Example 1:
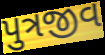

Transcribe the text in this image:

પુત્રજીવ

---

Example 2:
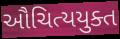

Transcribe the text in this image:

ઔચિત્યયુક્ત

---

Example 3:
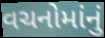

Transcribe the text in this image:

વચનોમાંનું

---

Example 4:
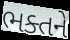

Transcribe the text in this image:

ભક્તને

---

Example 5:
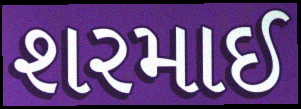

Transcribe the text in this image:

શરમાઈ